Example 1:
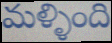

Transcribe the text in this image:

మళ్ళింది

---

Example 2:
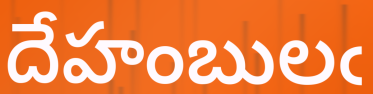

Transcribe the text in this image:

దేహంబులఁ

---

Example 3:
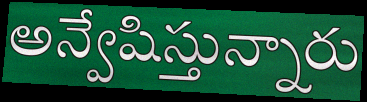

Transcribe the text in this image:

అన్వేషిస్తున్నారు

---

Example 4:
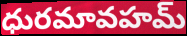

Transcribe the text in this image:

ధురమావహమ్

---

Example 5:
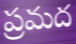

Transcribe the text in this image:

ప్రమద